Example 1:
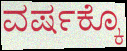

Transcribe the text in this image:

ವರ್ಷಕ್ಕೊ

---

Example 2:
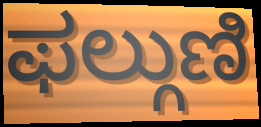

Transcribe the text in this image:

ಫಲ್ಗುಣಿ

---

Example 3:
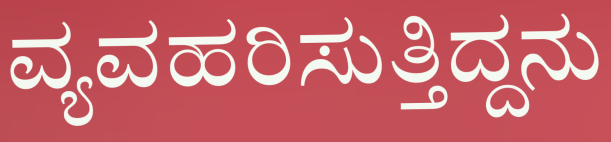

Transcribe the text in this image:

ವ್ಯವಹರಿಸುತ್ತಿದ್ದನು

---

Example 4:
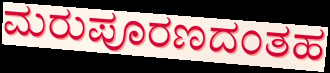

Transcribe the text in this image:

ಮರುಪೂರಣದಂತಹ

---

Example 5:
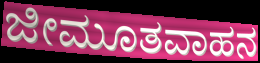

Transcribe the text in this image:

ಜೀಮೂತವಾಹನ